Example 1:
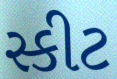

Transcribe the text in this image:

સ્કીટ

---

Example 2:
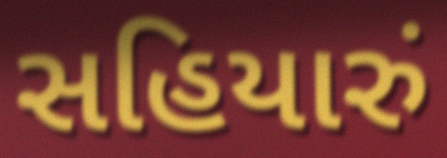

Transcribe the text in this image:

સહિયારું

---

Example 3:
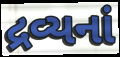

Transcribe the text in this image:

દ્રવ્યનાં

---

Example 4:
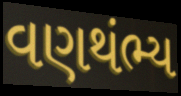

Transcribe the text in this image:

વણથંભ્ય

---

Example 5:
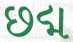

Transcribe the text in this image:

છદ્મ